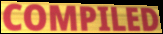
COMPILED